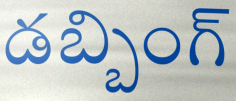
డబ్బింగ్